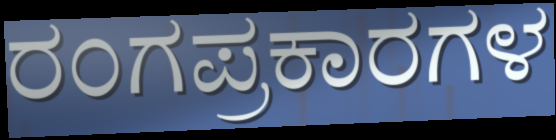
ರಂಗಪ್ರಕಾರಗಳ